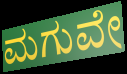
ಮಗುವೇ